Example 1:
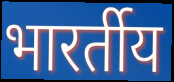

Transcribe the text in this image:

भारर्तीय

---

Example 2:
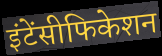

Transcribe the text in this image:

इंटेंसीफिकेशन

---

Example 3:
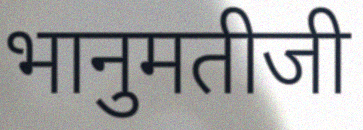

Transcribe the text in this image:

भानुमतीजी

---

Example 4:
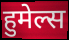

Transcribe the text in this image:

हुमेल्स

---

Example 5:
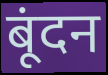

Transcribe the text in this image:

बूंदन